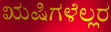
ಋಷಿಗಳೆಲ್ಲರ